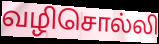
வழிசொல்லி